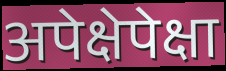
अपेक्षेपेक्षा